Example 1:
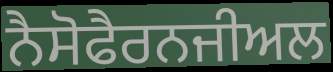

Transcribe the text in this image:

ਨੈਸੋਫੈਰਨਜੀਅਲ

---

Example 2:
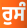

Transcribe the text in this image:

ਰੁਸੰ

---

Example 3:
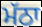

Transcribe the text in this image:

ਮੱਠਾ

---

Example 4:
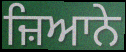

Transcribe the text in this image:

ਜ਼ਿਆਨੇ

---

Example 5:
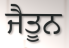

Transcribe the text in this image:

ਜੈਤੂਨ